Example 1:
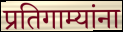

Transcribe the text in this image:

प्रतिगाम्यांना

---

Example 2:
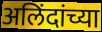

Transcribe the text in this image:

अलिंदांच्या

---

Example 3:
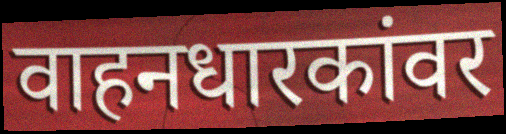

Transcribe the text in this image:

वाहनधारकांवर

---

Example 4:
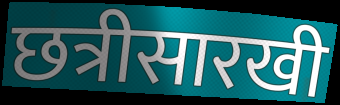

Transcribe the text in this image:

छत्रीसारखी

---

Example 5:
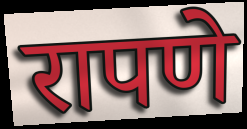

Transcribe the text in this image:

रापणे